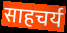
साहचर्य